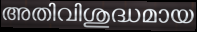
അതിവിശുദ്ധമായ